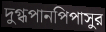
দুগ্ধপানপিপাসুর